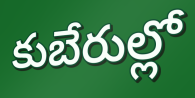
కుబేరుల్లో